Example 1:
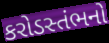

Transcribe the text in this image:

કરોડસ્તંભનો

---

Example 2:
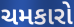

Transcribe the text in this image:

ચમકારો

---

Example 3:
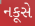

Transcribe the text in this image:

નકૂસે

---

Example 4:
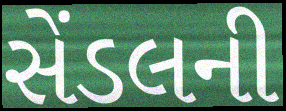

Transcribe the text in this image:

સેંડલની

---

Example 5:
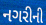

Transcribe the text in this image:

નગરીની